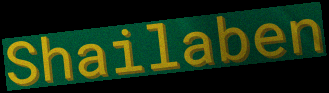
Shailaben